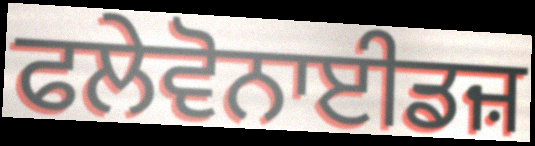
ਫਲੇਵੋਨਾਈਡਜ਼